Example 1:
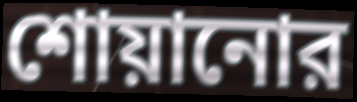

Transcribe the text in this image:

শোয়ানোর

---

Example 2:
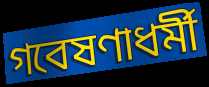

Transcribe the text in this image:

গবেষণাধর্মী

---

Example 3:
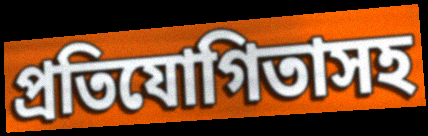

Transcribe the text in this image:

প্রতিযোগিতাসহ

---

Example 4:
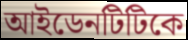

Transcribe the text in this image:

আইডেনটিটিকে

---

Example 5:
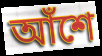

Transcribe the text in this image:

আঁশে